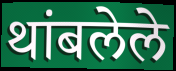
थांबलेले